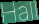
Hall